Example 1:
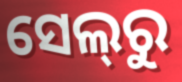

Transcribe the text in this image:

ସେଲ୍‌ରୁ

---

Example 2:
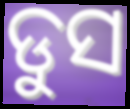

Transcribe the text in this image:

ଡୁସ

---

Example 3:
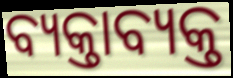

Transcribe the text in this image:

ବ୍ୟକ୍ତାବ୍ୟକ୍ତ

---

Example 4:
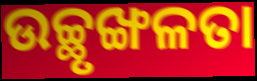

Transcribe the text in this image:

ଉଚ୍ଛୃଙ୍ଖଳତା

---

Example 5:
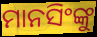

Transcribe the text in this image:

ମାନସିଂଙ୍କୁ